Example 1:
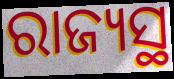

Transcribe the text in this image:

ରାଜ୍ୟସ୍ଥ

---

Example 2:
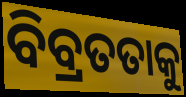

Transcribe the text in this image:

ବିବ୍ରତତାକୁ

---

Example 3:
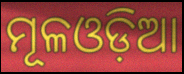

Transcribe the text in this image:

ମୂଳଓଡ଼ିଆ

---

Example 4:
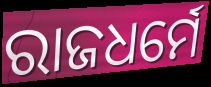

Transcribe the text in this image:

ରାଜଧର୍ମେ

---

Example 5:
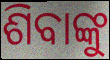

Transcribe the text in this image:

ଶିବାଙ୍କୁ